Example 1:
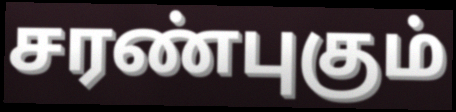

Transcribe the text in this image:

சரண்புகும்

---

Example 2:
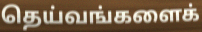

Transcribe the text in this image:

தெய்வங்களைக்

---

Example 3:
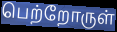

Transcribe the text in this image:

பெற்றோருள்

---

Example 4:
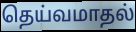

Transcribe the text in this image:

தெய்வமாதல்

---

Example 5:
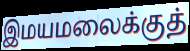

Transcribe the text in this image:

இமயமலைக்குத்